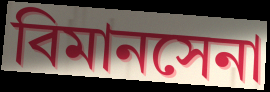
বিমানসেনা